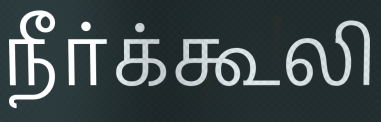
நீர்க்கூலி